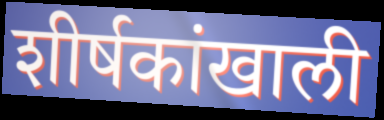
शीर्षकांखाली